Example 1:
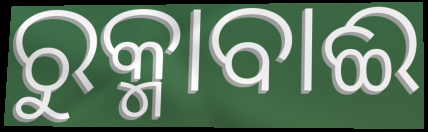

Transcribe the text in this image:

ରୁକ୍ମାବାଈ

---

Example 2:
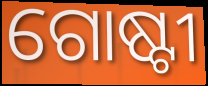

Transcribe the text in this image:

ଗୋଷ୍ଟୀ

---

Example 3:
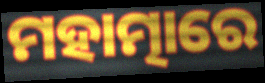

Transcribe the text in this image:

ମହାତ୍ମାରେ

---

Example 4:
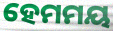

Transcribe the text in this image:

ହେମମୟ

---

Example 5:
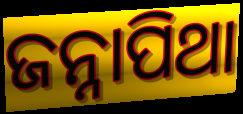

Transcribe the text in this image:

ଜନ୍ନାପିଥା